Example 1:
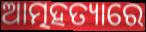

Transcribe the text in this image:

ଆତ୍ମହତ୍ୟାରେ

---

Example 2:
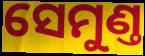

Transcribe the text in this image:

ସେମୁଣ୍ତ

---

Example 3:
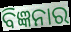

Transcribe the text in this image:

ବିଜ୍ଞନାର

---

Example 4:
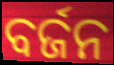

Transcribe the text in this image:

ବର୍ଜନ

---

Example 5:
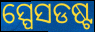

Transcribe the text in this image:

ସ୍ପେସଡଷ୍ଟ